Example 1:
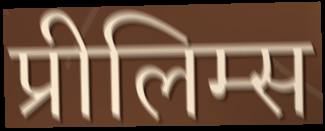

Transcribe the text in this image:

प्रीलिम्स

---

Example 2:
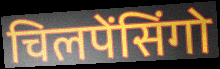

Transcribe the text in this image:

चिलपेंसिंगो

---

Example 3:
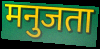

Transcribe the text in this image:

मनुजता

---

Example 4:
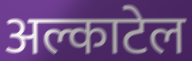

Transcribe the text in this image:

अल्काटेल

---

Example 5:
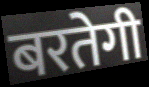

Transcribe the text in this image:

बरतेगी